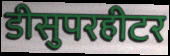
डीसुपरहीटर